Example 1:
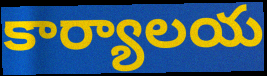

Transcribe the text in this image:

కార్యాలయ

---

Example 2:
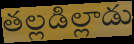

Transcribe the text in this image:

తల్లడిల్లాడు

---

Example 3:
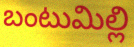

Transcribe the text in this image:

బంటుమిల్లి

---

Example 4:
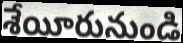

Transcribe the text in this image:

శేయీరునుండి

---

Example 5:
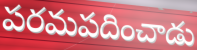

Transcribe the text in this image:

పరమపదించాడు